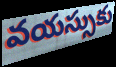
వయస్సుకు